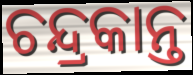
ଚନ୍ଦ୍ରକାନ୍ତ